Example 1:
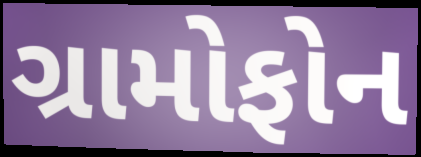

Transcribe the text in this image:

ગ્રામોફોન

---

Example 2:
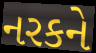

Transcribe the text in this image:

નરકને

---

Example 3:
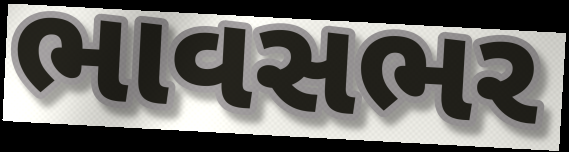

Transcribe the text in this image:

ભાવસભર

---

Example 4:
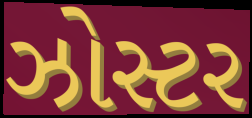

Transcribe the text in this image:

ઝોસ્ટર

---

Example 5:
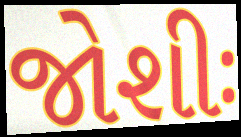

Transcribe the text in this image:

જોશીઃ